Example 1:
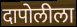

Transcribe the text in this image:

दापोलीला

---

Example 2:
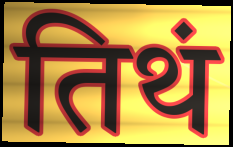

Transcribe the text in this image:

तिथं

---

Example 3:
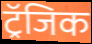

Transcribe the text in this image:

ट्रॅजिक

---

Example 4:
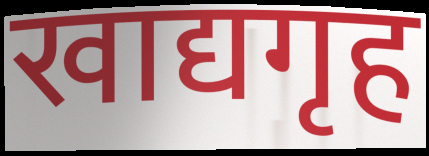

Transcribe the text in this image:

खाद्यगृह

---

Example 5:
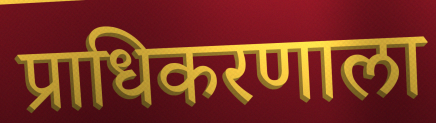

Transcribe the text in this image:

प्राधिकरणाला